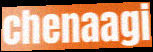
chenaagi